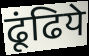
ढूंढिये